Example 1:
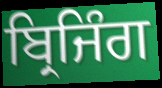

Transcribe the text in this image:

ਬ੍ਰਿਜਿੰਗ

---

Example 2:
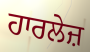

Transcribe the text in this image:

ਹਾਰਲੇਜ਼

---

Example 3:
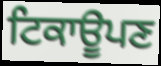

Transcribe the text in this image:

ਟਿਕਾਊਪਣ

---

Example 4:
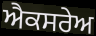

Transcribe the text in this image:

ਐਕਸਰੇਅ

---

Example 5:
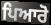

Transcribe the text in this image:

ਪਿਆਰੋ